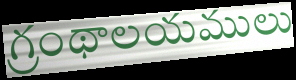
గ్రంథాలయములు